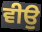
ਵੀਉ